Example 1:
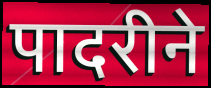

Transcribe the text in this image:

पादरीने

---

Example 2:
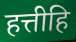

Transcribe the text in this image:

हत्तीहि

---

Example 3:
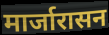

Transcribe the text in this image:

मार्जारासन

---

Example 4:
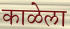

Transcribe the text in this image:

काळेला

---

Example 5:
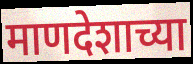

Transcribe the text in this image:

माणदेशाच्या